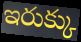
ఇరుక్కు